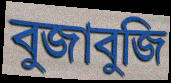
বুজাবুজি